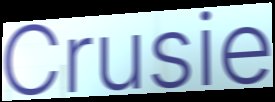
Crusie